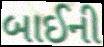
બાઈની